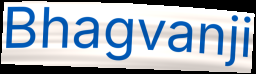
Bhagvanji